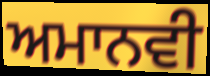
ਅਮਾਨਵੀ